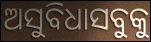
ଅସୁବିଧାସବୁକୁ